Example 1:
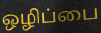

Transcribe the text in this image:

ஒழிப்பை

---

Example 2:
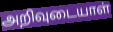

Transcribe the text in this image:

அறிவுடையாள்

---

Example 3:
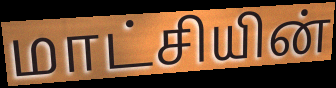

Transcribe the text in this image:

மாட்சியின்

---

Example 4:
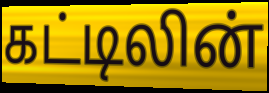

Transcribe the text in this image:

கட்டிலின்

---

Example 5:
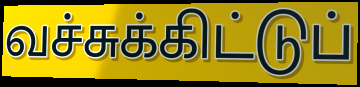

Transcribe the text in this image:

வச்சுக்கிட்டுப்